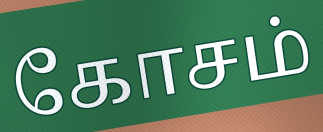
கோசம்